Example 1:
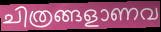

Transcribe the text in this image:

ചിത്രങ്ങളാണവ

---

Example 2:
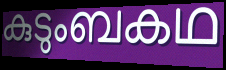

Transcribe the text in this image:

കുടുംബകഥ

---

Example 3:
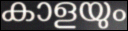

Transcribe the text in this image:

കാളയും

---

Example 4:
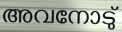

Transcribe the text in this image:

അവനോടു്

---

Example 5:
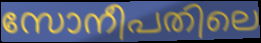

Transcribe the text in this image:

സോനീപതിലെ